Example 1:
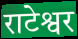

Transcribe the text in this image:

राटेश्वर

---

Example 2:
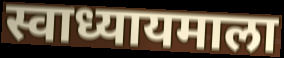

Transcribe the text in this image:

स्वाध्यायमाला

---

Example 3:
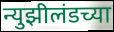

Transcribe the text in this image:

न्युझीलंडच्या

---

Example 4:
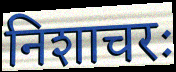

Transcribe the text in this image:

निशाचरः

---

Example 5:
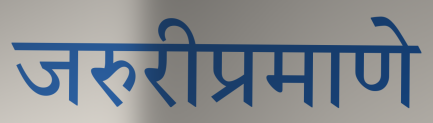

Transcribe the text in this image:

जरुरीप्रमाणे